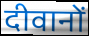
दीवानों